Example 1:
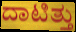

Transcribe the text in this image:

ದಾಟಿತ್ತು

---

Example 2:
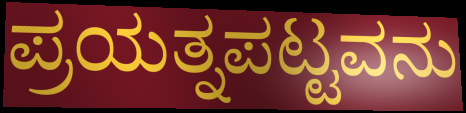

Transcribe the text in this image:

ಪ್ರಯತ್ನಪಟ್ಟವನು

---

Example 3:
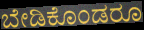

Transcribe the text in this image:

ಬೇಡಿಕೊಂಡರೂ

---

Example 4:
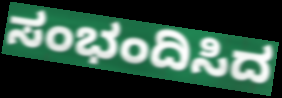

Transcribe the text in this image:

ಸಂಭಂದಿಸಿದ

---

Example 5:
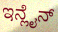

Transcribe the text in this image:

ಇನ್ಲೈನ್